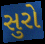
સુરો